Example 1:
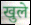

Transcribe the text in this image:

खुले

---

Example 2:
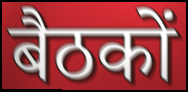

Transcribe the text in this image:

बैठकों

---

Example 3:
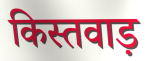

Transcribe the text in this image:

किस्तवाड़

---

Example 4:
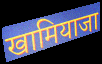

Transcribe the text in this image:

खामियाजा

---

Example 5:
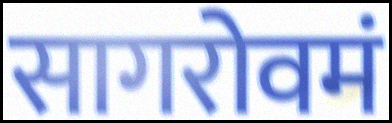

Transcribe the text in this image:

सागरोवमं